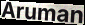
Aruman